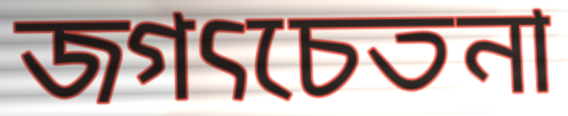
জগৎচেতনা